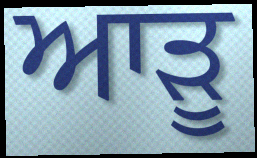
ਆੜੂ